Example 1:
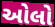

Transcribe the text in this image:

ઓલો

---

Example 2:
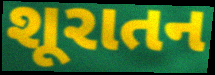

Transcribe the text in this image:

શૂરાતન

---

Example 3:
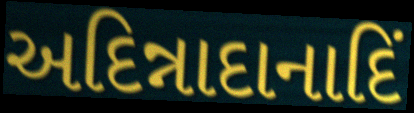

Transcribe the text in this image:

અદિન્નાદાનાદિં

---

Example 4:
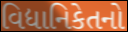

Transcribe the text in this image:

વિદ્યાનિકેતનો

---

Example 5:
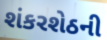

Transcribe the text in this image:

શંકરશેઠની